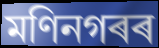
মণিনগৰৰ